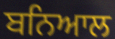
ਬਨਿਆਲ